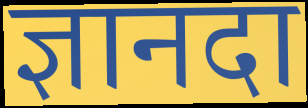
ज्ञानदा